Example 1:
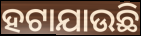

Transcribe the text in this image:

ହଟାଯାଉଛି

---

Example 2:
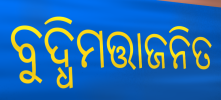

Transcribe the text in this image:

ବୁଦ୍ଧିମତ୍ତାଜନିତ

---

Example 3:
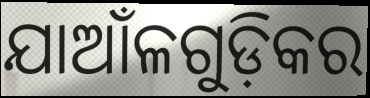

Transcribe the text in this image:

ଯାଆଁଳଗୁଡ଼ିକର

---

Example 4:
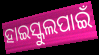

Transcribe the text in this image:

ହାଇସ୍କୁଲପାଇଁ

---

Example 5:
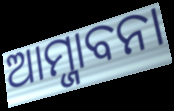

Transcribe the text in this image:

ଆମ୍ଜାବନା